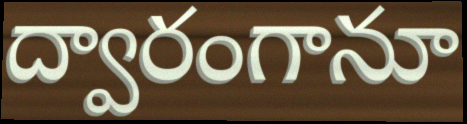
ద్వారంగానూ